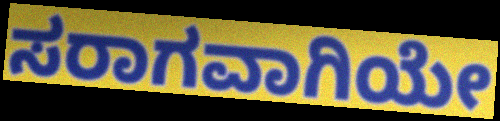
ಸರಾಗವಾಗಿಯೇ